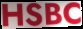
HSBC